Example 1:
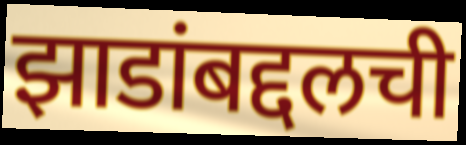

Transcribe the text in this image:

झाडांबद्दलची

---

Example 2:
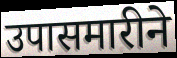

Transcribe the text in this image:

उपासमारीने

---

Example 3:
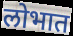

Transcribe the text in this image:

लोभात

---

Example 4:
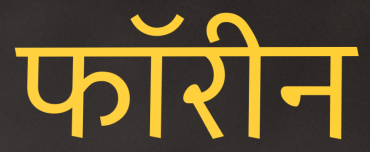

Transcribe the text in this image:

फॉरीन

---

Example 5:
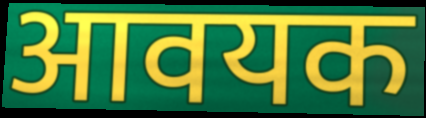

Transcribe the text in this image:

आवयक